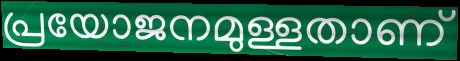
പ്രയോജനമുള്ളതാണ്